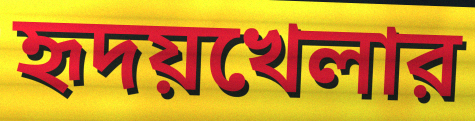
হৃদয়খেলার